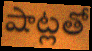
షాట్లతో